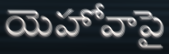
యెహోవాపై